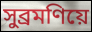
সুব্ৰমণিয়ে